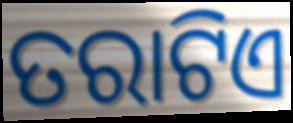
ତରାଟିଏ